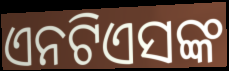
ଏନଟିଏସଙ୍କ